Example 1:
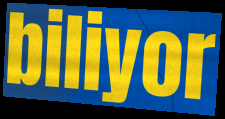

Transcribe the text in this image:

biliyor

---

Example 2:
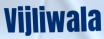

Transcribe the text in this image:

Vijliwala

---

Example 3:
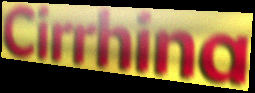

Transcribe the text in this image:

Cirrhina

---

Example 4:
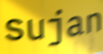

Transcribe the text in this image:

sujan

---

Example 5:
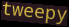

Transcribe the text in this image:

tweepy